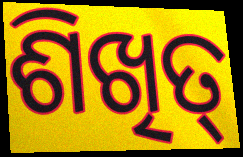
ଶିଖିତ୍